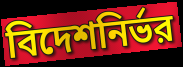
বিদেশনির্ভর